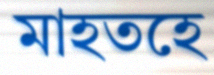
মাহতহে